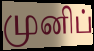
முனிப்